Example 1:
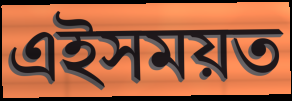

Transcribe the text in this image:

এইসময়ত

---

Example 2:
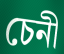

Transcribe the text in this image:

চেনী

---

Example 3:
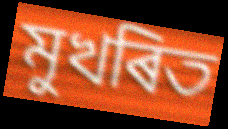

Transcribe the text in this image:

মুখৰিত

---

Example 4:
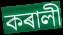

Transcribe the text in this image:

কৰালী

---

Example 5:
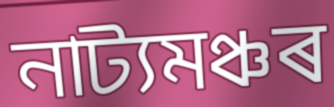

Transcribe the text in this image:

নাট্যমঞ্চৰ